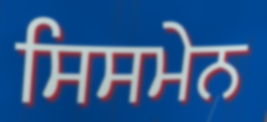
ਸਿਸਮੇਨ